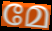
മേ